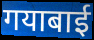
गयाबाई